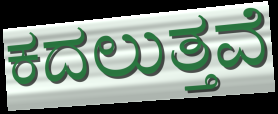
ಕದಲುತ್ತವೆ